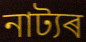
নাট্যৰ